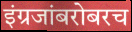
इंग्रजांबरोबरच